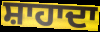
ਸ਼ਾਹਾਦਾ